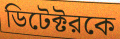
ডিটেক্টরকে